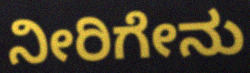
ನೀರಿಗೇನು